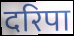
दरिपा